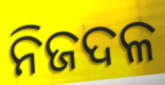
ନିଜଦଳ